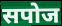
सपोज